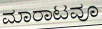
ಮಾರಾಟವೂ